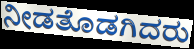
ನೀಡತೊಡಗಿದರು